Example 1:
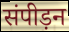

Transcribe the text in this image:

संपीड़न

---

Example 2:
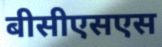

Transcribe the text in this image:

बीसीएसएस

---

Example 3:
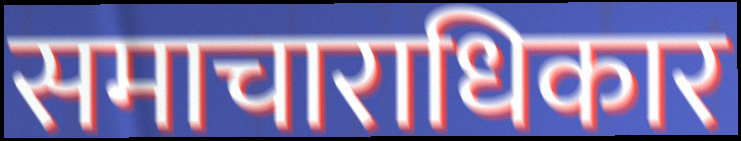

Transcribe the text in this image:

समाचाराधिकार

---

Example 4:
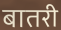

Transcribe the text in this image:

बातरी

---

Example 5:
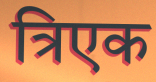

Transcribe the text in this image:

त्रिएक